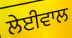
ਲੇਈਵਾਲ